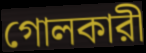
গোলকারী